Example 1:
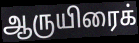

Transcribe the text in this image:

ஆருயிரைக்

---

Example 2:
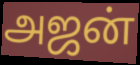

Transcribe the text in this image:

அஜன்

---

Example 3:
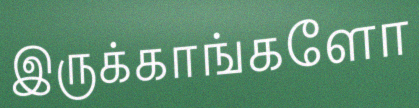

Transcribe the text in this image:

இருக்காங்களோ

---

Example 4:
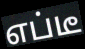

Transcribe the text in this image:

எப்டீ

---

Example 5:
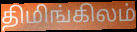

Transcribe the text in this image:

திமிங்கிலம்